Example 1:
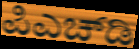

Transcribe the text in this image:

ಪಿಎಚ್‌ಡಿ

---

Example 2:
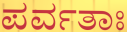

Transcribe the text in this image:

ಪರ್ವತಾಃ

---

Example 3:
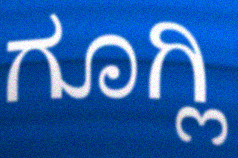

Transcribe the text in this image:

ಗೂಗ್ಲಿ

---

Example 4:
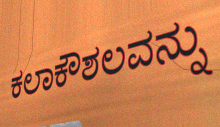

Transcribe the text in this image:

ಕಲಾಕೌಶಲವನ್ನು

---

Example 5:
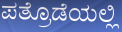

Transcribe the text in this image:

ಪತ್ರೊಡೆಯಲ್ಲಿ